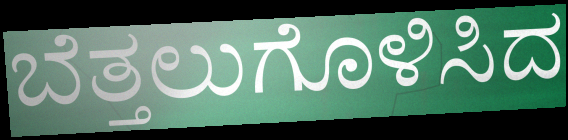
ಬೆತ್ತಲುಗೊಳಿಸಿದ